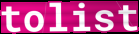
tolist